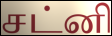
சட்னி